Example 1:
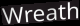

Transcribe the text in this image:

Wreath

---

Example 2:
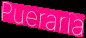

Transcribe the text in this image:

Pueraria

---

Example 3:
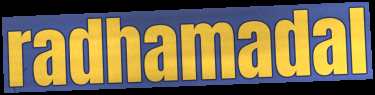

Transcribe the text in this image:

radhamadal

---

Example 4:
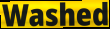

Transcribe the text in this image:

Washed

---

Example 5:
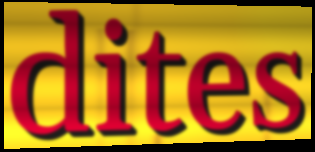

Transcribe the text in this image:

dites